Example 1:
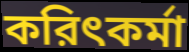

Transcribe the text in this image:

করিৎকর্মা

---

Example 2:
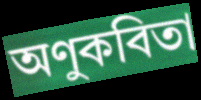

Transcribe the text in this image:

অণুকবিতা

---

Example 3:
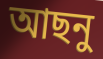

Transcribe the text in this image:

আছনু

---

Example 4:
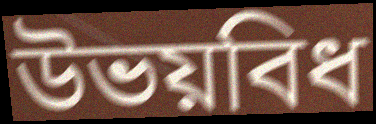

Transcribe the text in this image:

উভয়বিধ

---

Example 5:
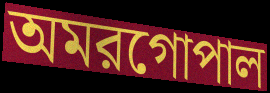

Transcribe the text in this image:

অমরগোপাল